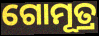
ଗୋମୂତ୍ର